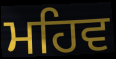
ਮਹਿਵ